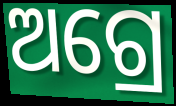
ଅଗ୍ରେ